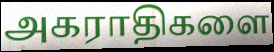
அகராதிகளை